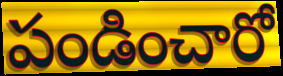
పండించారో